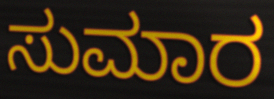
ಸುಮಾರ